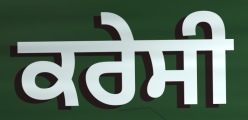
ਕਰੇਸੀ